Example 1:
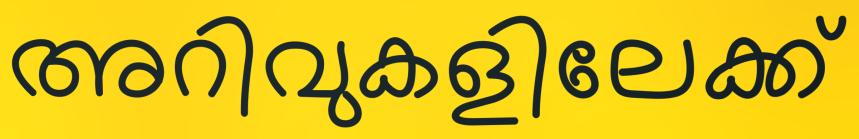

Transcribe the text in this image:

അറിവുകളിലേക്ക്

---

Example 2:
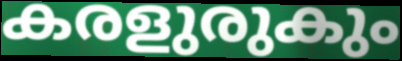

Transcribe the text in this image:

കരളുരുകും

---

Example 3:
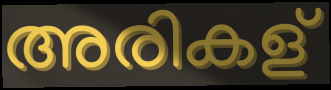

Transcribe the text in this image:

അരികള്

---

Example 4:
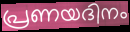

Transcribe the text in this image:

പ്രണയദിനം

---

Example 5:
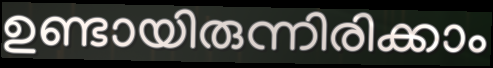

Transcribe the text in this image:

ഉണ്ടായിരുന്നിരിക്കാം